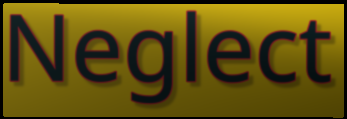
Neglect